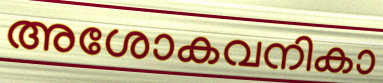
അശോകവനികാ